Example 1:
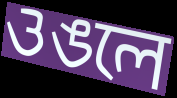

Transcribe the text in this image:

ওঙলে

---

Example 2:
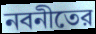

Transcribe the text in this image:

নবনীতের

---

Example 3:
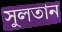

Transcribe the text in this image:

সুলতান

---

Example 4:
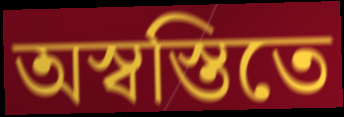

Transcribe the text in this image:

অস্বস্তিতে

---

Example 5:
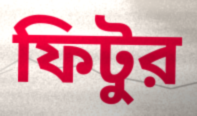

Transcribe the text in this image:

ফিটুর